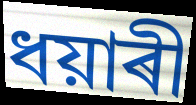
ধয়াৰী